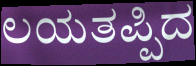
ಲಯತಪ್ಪಿದ